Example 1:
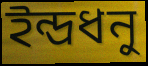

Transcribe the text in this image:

ইন্দ্রধনু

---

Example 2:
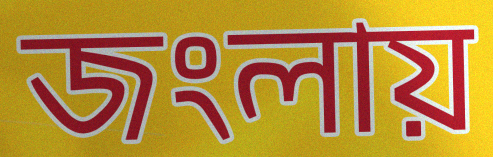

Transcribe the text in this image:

জংলায়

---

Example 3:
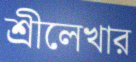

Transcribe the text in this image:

শ্রীলেখার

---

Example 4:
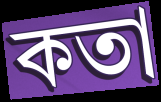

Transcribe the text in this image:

কতা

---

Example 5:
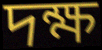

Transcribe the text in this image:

দক্ষ